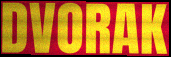
DVORAK